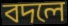
বদলে